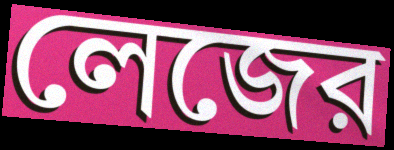
লেজের